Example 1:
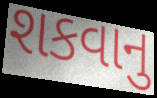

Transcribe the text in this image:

શકવાનુ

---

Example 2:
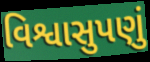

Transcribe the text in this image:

વિશ્વાસુપણું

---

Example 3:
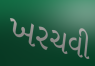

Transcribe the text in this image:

ખરચવી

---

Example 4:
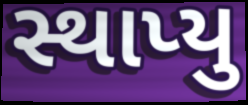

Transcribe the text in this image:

સ્થાપ્યુ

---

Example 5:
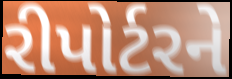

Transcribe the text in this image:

રીપોર્ટરને